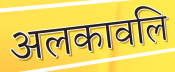
अलकावलि